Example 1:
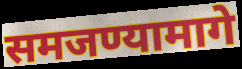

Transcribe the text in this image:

समजण्यामागे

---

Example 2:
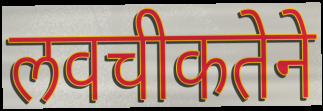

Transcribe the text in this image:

लवचीकतेने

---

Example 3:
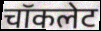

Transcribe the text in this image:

चॉकलेट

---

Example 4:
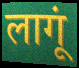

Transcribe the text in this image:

लागूं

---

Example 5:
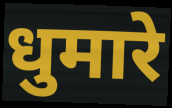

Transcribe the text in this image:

धुमारे